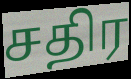
சதிர